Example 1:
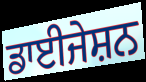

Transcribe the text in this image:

ਡਾਈਜੇਸ਼ਨ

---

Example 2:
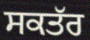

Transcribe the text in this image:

ਸਕਤੱਰ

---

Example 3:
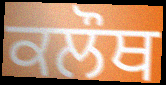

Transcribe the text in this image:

ਕਲੌਥ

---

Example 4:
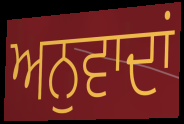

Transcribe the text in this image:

ਅਨੁਵਾਦਾਂ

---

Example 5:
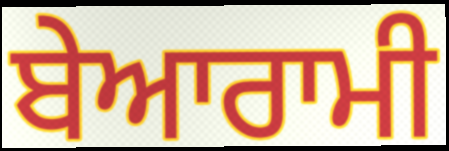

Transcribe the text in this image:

ਬੇਆਰਾਮੀ